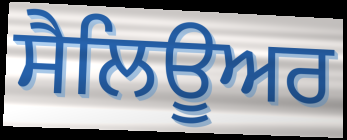
ਸੈਲਿਊਅਰ